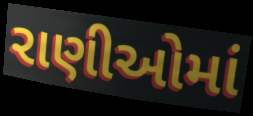
રાણીઓમાં